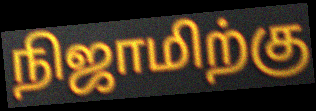
நிஜாமிற்கு